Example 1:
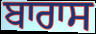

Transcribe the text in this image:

ਬਾਰਾਸ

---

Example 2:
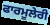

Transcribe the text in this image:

ਫਾਰਮੂਲੇਰੀ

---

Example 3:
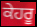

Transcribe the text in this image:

ਕੇਹਰੂ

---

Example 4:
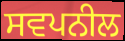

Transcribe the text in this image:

ਸਵਪਨੀਲ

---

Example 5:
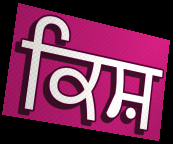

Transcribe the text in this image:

ਕਿਸ਼